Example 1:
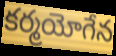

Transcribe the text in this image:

కర్మయోగేన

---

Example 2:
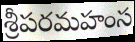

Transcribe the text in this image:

శ్రీపరమహంస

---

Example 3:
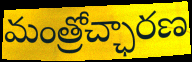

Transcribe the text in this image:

మంత్రోచ్ఛారణ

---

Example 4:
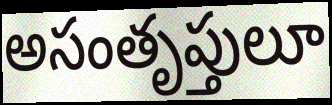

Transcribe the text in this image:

అసంతృప్తులూ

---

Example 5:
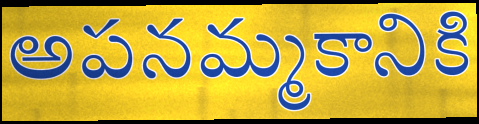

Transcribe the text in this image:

అపనమ్మకానికి